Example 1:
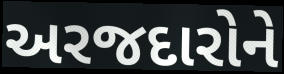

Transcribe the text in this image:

અરજદારોને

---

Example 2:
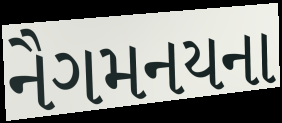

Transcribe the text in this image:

નૈગમનયના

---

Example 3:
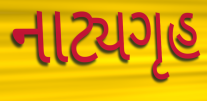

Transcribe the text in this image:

નાટ્યગૃહ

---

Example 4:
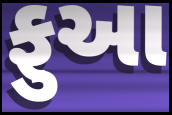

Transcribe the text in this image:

ફુઆ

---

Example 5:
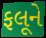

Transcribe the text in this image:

ફલૂને